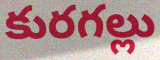
కురగల్లు